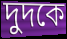
দুদকে